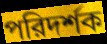
পরিদর্শক